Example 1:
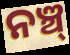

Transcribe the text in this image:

ନଞ୍ଚ୍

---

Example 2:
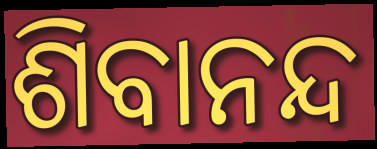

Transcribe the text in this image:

ଶିବାନନ୍ଦ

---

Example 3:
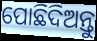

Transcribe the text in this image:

ପୋଛିଦିଅନ୍ତୁ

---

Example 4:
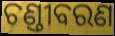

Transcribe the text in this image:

ଚଣ୍ଡୀବରଣ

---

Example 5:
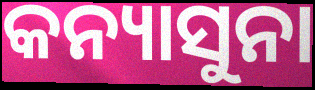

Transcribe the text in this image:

କନ୍ୟାସୁନା